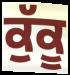
ਕੁੱਕੂ